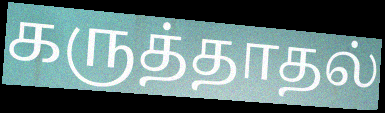
கருத்தாதல்